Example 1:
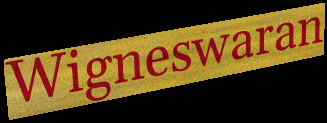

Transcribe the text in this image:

Wigneswaran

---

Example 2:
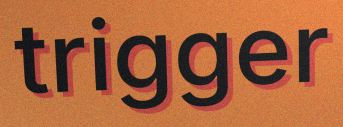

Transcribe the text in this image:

trigger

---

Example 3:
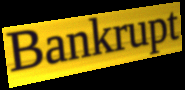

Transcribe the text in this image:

Bankrupt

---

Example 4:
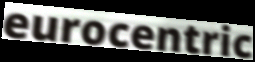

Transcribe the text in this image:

eurocentric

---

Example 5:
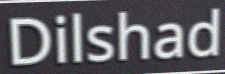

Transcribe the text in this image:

Dilshad